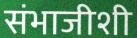
संभाजीशी